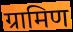
ग्रामिण